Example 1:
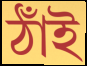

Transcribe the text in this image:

ঠাঁই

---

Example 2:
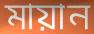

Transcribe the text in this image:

মায়ান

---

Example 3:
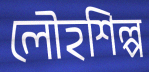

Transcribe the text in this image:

লৌহশিল্প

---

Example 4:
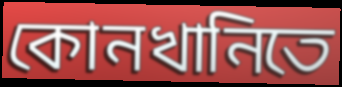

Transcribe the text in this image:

কোনখানিতে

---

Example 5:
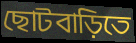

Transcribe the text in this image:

ছোটবাড়িতে